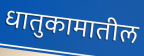
धातुकामातील